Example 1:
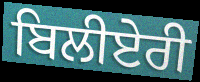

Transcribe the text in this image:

ਬਿਲੀਏਰੀ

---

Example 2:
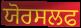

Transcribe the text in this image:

ਯੋਰਸਲਫ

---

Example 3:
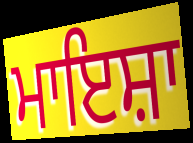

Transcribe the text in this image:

ਮਾਇਸ਼ਾ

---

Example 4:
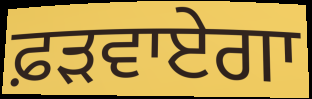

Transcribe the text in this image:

ਫ਼ੜਵਾਏਗਾ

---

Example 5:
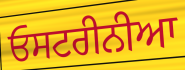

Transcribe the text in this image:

ਓਸਟਰੀਨੀਆ